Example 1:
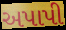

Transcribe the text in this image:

અપાપી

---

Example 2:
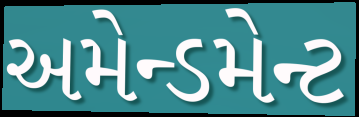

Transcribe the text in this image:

અમેન્ડમેન્ટ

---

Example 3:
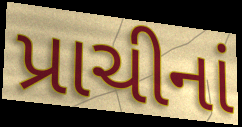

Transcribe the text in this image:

પ્રાચીનાં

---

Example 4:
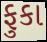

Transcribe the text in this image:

ફુકા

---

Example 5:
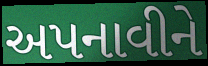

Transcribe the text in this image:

અપનાવીને